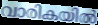
വാരികയിൽ